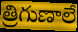
త్రిగుణాలే